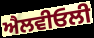
ਐਲਵੀਓਲੀ